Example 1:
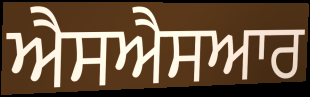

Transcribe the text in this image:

ਐਸਐਸਆਰ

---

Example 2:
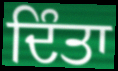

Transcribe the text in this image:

ਦਿੰਤਾ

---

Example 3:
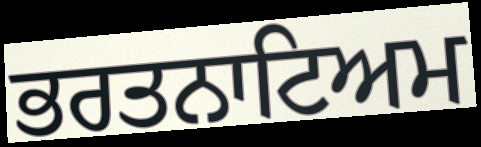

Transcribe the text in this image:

ਭਰਤਨਾਟਿਅਮ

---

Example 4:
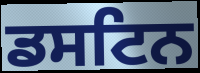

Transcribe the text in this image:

ਡਸਟਿਨ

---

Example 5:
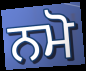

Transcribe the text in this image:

ਨਮੋ